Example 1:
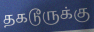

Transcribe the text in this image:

தகடூருக்கு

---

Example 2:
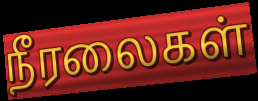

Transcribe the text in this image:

நீரலைகள்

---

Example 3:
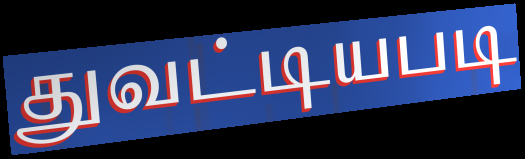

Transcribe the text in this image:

துவட்டியபடி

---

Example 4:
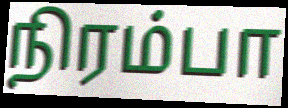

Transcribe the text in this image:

நிரம்பா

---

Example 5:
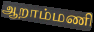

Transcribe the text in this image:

ஆறாம்மணி